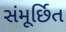
સંમૂર્છિત